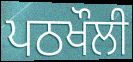
ਪਠਖੌਲੀ